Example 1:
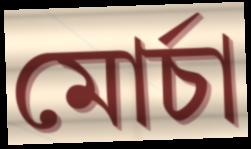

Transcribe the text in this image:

মোর্চা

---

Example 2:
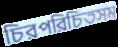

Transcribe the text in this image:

চিরপরিচিতসম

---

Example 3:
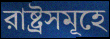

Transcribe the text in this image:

রাষ্ট্রসমূহে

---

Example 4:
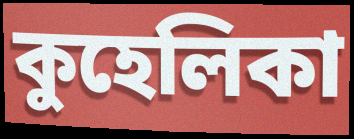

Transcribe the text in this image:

কুহেলিকা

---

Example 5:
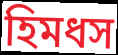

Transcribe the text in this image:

হিমধস